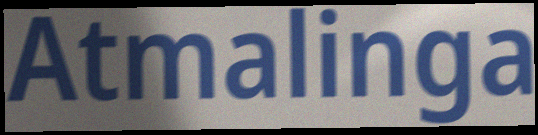
Atmalinga